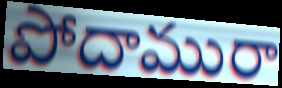
పోదామురా